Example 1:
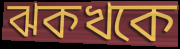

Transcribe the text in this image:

ঝকখকে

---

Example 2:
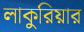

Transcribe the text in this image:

লাকুরিয়ার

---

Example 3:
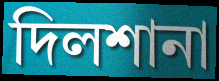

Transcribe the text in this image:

দিলশানা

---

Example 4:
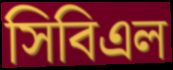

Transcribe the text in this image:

সিবিএল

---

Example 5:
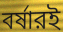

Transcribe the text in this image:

বর্ষারই